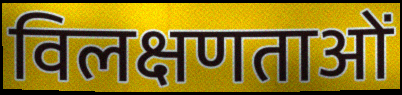
विलक्षणताओं